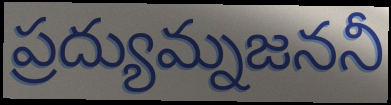
ప్రద్యుమ్నజననీ